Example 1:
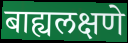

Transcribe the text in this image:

बाह्यलक्षणे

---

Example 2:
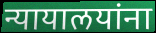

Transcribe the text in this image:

न्यायालयांना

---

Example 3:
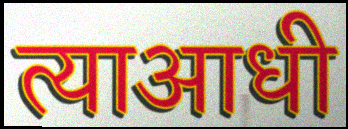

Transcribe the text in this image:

त्याआधी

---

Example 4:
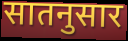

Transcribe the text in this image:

सातनुसार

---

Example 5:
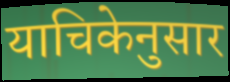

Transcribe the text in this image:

याचिकेनुसार